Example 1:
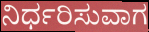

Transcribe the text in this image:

ನಿರ್ಧರಿಸುವಾಗ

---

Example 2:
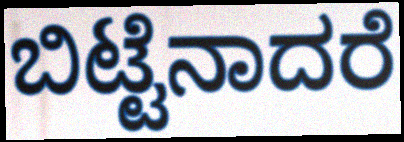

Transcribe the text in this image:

ಬಿಟ್ಟೆನಾದರೆ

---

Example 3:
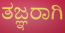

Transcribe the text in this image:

ತಜ್ಞರಾಗಿ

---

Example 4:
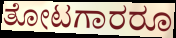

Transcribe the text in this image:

ತೋಟಗಾರರೂ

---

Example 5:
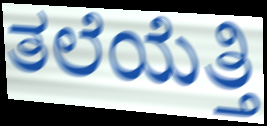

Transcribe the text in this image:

ತಲೆಯೆತ್ತಿ